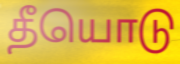
தீயொடு